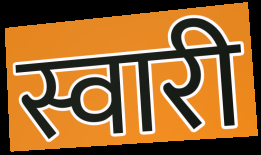
स्वारी